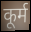
कूर्म